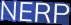
NERP